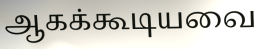
ஆகக்கூடியவை